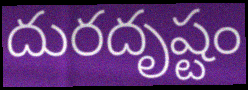
దురదృష్టం